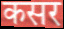
कसर